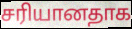
சரியானதாக